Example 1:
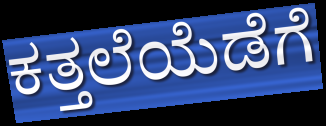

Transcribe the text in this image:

ಕತ್ತಲೆಯೆಡೆಗೆ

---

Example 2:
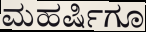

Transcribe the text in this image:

ಮಹರ್ಷಿಗೂ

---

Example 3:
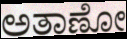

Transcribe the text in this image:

ಅತಾಣೋ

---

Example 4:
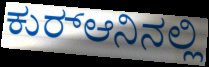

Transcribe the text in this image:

ಕುರ್‍ಆನಿನಲ್ಲಿ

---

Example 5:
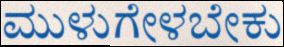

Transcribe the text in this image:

ಮುಳುಗೇಳಬೇಕು